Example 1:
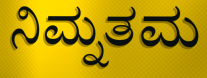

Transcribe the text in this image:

ನಿಮ್ನತಮ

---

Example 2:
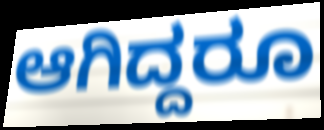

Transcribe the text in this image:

ಆಗಿದ್ದರೂ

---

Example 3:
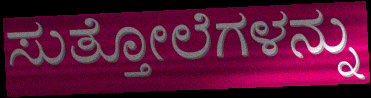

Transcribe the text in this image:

ಸುತ್ತೋಲೆಗಳನ್ನು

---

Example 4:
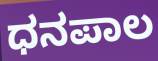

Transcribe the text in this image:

ಧನಪಾಲ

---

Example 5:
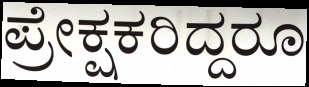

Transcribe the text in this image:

ಪ್ರೇಕ್ಷಕರಿದ್ದರೂ